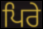
ਪਿਰੇ